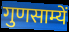
गुणसाम्यें